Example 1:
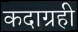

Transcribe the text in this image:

कदाग्रही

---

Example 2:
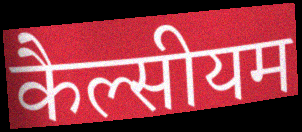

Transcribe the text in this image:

कैल्सीयम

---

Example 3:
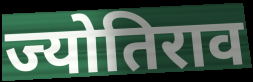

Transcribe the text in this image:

ज्योतिराव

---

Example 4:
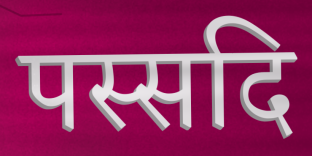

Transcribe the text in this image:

पस्सदि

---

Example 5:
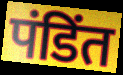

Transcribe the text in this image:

पंडिंत